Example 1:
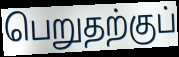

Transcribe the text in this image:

பெறுதற்குப்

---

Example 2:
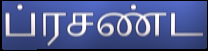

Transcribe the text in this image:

ப்ரசண்ட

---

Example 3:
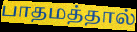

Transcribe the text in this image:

பாதமத்தால்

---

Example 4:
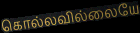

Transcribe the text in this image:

கொல்லவில்லையே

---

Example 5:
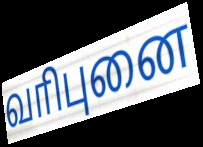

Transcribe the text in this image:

வரிபுனை